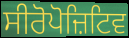
ਸੀਰੋਪੋਜ਼ਿਟਿਵ